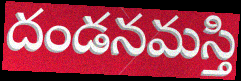
దండనమస్తి